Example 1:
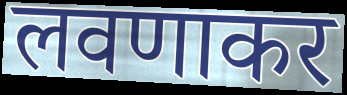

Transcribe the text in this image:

लवणाकर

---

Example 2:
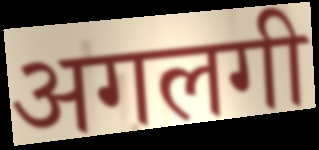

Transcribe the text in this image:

अगलगी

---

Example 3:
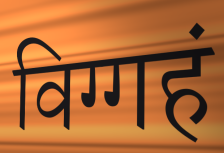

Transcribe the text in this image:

विग्गहं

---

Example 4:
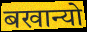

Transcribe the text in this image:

बखान्यो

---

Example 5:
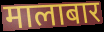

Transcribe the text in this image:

मालाबार